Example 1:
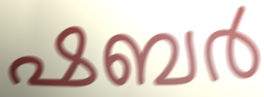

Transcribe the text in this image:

ഷബർ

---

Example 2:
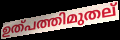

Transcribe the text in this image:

ഉത്പത്തിമുതല്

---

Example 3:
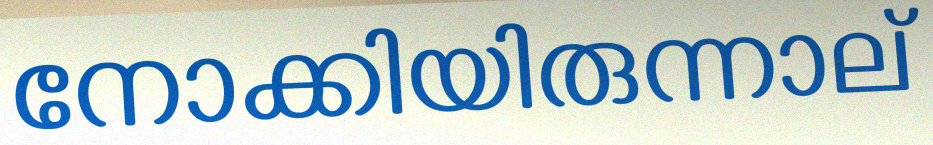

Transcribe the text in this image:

നോക്കിയിരുന്നാല്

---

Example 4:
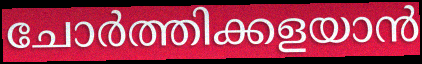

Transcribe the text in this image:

ചോർത്തിക്കളയാൻ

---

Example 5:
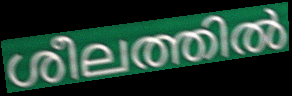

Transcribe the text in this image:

ശീലത്തിൽ